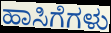
ಹಾಸಿಗೆಗಳು